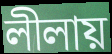
লীলায়